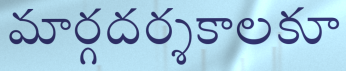
మార్గదర్శకాలకూ